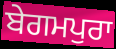
ਬੇਗਮਪੁਰਾ